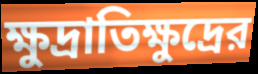
ক্ষুদ্রাতিক্ষুদ্রের